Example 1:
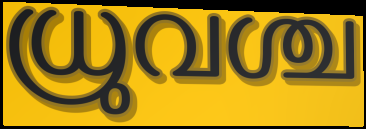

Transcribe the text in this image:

ധ്രുവശ്ച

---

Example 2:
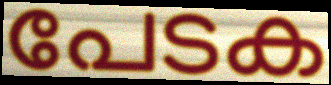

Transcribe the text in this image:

പേടക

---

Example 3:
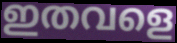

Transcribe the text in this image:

ഇതവളെ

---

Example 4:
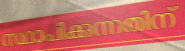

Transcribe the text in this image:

സ്ഥാപിക്കുന്നതിന്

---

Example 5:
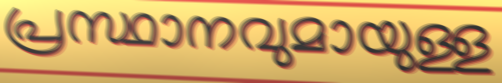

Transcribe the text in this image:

പ്രസ്ഥാനവുമായുള്ള